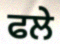
ਫਲੇ